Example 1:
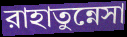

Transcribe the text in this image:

রাহাতুন্নেসা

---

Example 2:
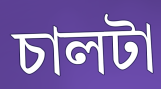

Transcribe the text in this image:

চালটা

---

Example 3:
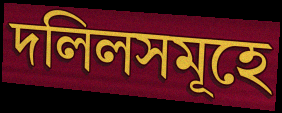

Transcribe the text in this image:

দলিলসমূহে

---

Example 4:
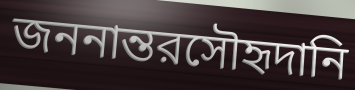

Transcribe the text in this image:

জননান্তরসৌহৃদানি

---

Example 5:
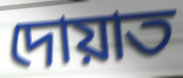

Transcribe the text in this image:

দোয়াত